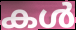
കൾ